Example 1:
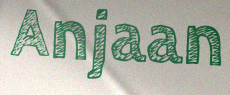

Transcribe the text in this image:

Anjaan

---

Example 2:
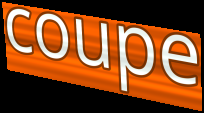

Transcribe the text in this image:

coupe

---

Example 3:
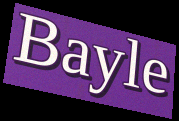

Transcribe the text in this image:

Bayle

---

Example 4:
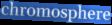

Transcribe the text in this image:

chromosphere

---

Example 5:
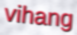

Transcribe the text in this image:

vihang